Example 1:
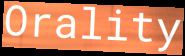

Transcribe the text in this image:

Orality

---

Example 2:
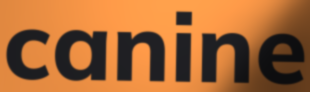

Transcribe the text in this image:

canine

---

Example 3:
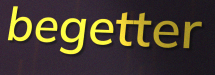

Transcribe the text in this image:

begetter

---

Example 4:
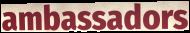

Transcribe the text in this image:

ambassadors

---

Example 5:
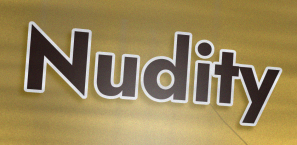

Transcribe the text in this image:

Nudity